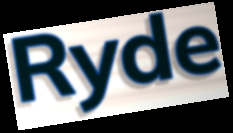
Ryde